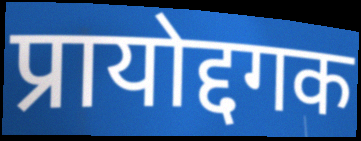
प्रायोद्दगक